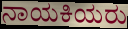
ನಾಯಕಿಯರು